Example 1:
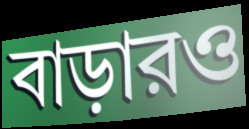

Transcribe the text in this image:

বাড়ারও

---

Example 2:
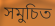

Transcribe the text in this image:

সমুচিত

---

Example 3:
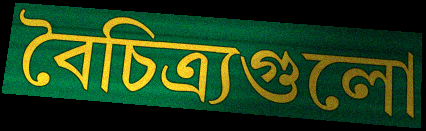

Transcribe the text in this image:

বৈচিত্র্যগুলো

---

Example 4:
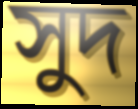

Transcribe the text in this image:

সুদ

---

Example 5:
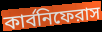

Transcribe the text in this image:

কার্বনিফেরাস